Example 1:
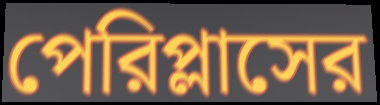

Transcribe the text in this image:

পেরিপ্লাসের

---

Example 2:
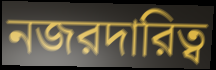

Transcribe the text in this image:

নজরদারিত্ব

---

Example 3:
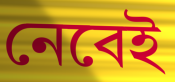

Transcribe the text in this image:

নেবেই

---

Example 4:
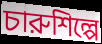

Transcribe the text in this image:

চারুশিল্পে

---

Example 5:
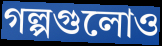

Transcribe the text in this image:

গল্পগুলোও